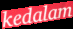
kedalam